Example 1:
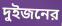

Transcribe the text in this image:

দুইজনের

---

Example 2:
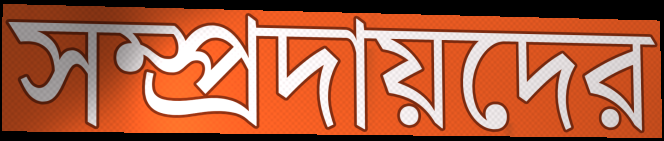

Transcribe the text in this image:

সম্প্রদায়দের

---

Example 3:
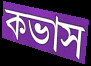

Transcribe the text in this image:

কভাস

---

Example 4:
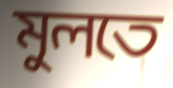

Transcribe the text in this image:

মুলতে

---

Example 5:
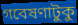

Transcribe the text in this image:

গবেষণাটুকু